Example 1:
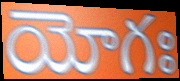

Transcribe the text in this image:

యోగః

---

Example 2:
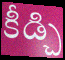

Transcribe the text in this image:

కీడ్చి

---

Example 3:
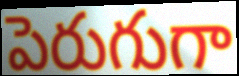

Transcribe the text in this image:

పెరుగుగా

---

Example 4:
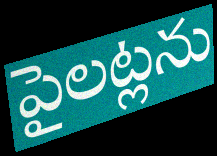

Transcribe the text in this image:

పైలట్లను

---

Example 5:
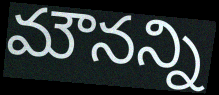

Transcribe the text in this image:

మౌనన్ని